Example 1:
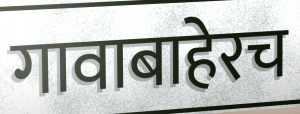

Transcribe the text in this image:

गावाबाहेरच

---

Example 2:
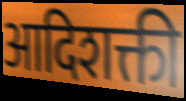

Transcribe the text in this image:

आदिशक्ती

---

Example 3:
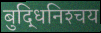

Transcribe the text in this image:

बुद्धिनिश्चय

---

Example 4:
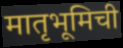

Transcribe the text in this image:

मातृभूमिची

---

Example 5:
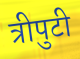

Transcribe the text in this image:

त्रीपुटी